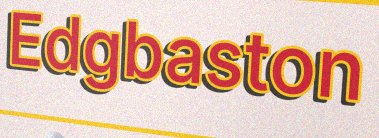
Edgbaston